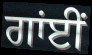
ਗਾਂਈਂ